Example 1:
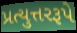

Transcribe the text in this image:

પ્રત્યુત્તરરૂપે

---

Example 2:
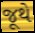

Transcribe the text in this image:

જૂથે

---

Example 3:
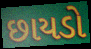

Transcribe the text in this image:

છાયડો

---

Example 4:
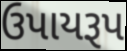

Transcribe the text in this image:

ઉપાયરૂપ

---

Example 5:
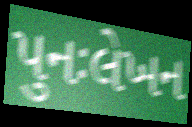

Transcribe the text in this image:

પુનઃલેખન